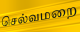
செல்வமறை